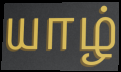
யாழ்